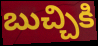
బుచ్చికి